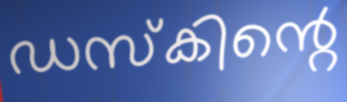
ഡസ്കിന്റെ